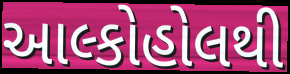
આલ્કોહોલથી